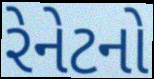
રેનેટનો